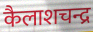
कैलाशचन्द्र